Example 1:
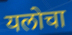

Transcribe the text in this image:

यलोचा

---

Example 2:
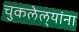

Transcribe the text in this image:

चुकलेल्यांना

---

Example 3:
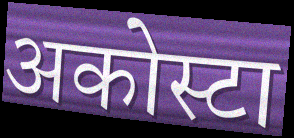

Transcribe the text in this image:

अकोस्टा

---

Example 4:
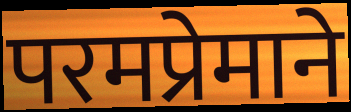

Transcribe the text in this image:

परमप्रेमाने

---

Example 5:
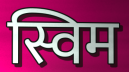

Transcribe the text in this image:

स्विम